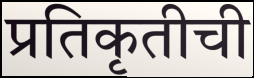
प्रतिकृतीची